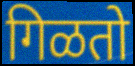
गिळतो